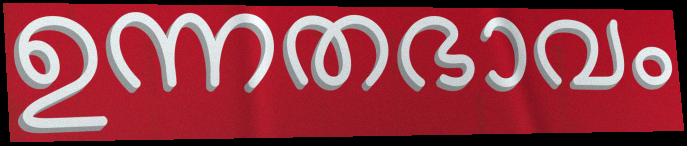
ഉന്നതഭാവം